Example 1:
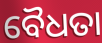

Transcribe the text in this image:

ବୈଧତା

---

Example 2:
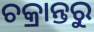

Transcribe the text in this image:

ଚକ୍ରାନ୍ତରୁ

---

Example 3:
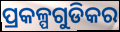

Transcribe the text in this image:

ପ୍ରକଳ୍ପଗୁଡିକର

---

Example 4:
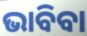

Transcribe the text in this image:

ଭାବିବା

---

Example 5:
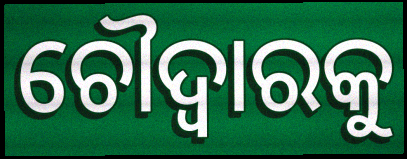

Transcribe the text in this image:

ଚୌଦ୍ୱାରକୁ